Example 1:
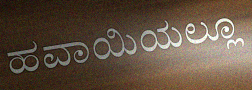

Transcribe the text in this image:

ಹವಾಯಿಯಲ್ಲೂ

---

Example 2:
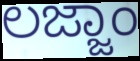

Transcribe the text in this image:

ಲಜ್ಜಾಂ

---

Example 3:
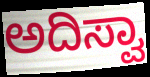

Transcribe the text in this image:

ಅದಿಸ್ವಾ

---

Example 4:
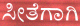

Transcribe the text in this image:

ಸೀತೆಗಾಗಿ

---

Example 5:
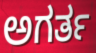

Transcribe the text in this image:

ಅಗರ್ತ